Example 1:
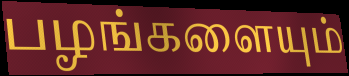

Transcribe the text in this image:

பழங்களையும்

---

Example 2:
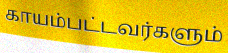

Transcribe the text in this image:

காயம்பட்டவர்களும்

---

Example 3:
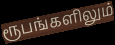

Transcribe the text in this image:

ரூபங்களிலும்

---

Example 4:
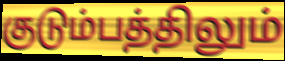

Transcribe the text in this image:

குடும்பத்திலும்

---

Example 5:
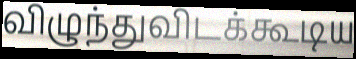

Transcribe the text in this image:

விழுந்துவிடக்கூடிய